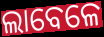
ଲାବେଳେ